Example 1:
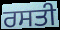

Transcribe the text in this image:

ਰਸਤੀ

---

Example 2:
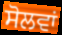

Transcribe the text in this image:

ਸੋਲਵਾਂ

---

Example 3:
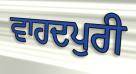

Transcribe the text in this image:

ਵਾਹਦਪੁਰੀ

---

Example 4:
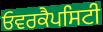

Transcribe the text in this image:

ਓਵਰਕੈਪਸਿਟੀ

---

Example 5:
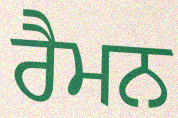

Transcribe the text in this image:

ਰੈਮਨ